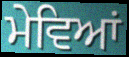
ਮੇਵਿਆਂ